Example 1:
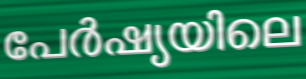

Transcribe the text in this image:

പേർഷ്യയിലെ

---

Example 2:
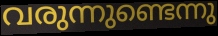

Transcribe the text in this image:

വരുന്നുണ്ടെന്നു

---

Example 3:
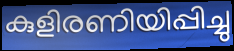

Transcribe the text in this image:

കുളിരണിയിപ്പിച്ചു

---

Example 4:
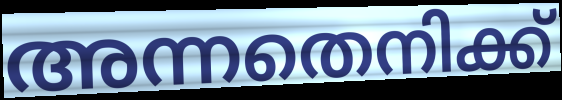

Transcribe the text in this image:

അന്നതെനിക്ക്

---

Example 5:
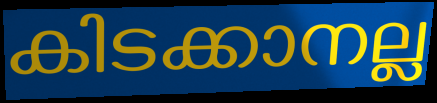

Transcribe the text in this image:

കിടക്കാനല്ല